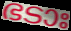
ഭടാഃ